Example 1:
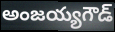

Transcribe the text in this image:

అంజయ్యగౌడ్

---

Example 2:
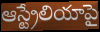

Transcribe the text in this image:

ఆస్ట్రేలియాపై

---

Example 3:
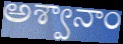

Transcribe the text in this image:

అశ్వానాం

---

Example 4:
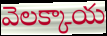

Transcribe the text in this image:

వెలక్కాయ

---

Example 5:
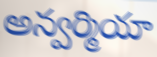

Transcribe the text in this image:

అన్వర్మియా